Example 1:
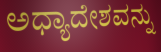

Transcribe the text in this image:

ಅಧ್ಯಾದೇಶವನ್ನು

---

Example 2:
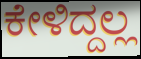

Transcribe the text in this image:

ಕೇಳಿದ್ದಲ್ಲ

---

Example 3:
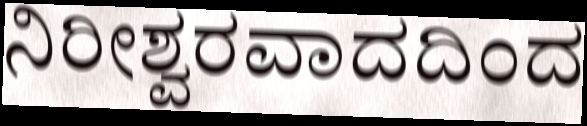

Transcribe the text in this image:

ನಿರೀಶ್ವರವಾದದಿಂದ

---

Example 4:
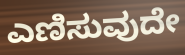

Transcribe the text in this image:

ಎಣಿಸುವುದೇ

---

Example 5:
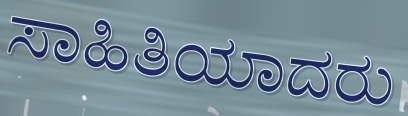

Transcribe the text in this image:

ಸಾಹಿತಿಯಾದರು